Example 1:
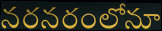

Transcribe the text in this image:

నరనరంలోనూ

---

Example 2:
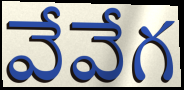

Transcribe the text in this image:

వేవేగ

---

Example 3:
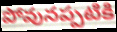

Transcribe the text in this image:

పోవునప్పటికి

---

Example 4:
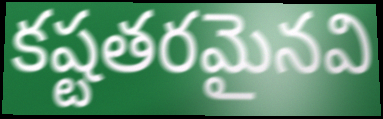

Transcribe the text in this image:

కష్టతరమైనవి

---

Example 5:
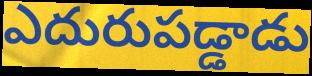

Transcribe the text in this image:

ఎదురుపడ్డాడు